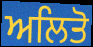
ਅਲਿਤੋ